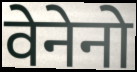
वेनेनो